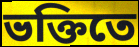
ভক্তিতে